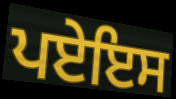
ਪਏਇਸ